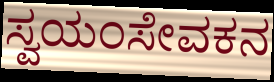
ಸ್ವಯಂಸೇವಕನ